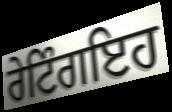
ਰੇਟਿੰਗਇਹ